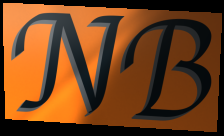
NB